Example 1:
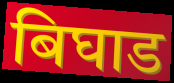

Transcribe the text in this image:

बिघाड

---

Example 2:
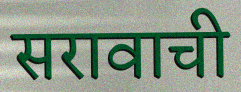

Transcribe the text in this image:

सरावाची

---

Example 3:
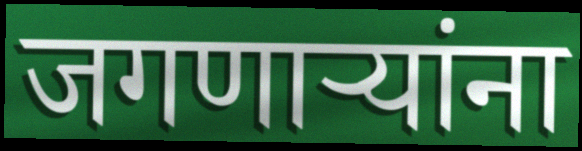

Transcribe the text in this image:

जगणाऱ्यांना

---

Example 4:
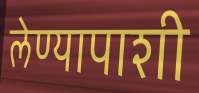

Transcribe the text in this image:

लेण्यापाशी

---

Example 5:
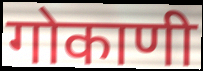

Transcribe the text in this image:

गोकाणी